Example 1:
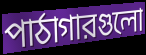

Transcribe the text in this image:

পাঠাগারগুলো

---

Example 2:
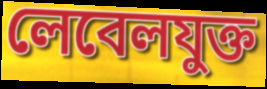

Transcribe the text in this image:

লেবেলযুক্ত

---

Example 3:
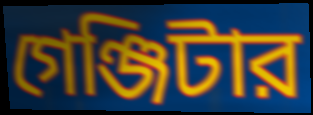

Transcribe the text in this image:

গেঞ্জিটার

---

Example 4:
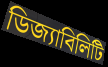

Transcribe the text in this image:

ডিজ্যাবিলিটি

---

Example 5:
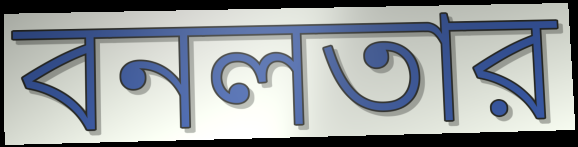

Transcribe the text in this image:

বনলতার